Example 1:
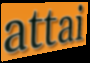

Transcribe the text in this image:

attai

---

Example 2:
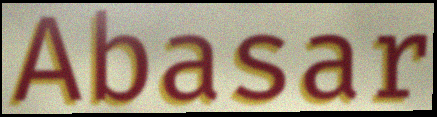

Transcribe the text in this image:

Abasar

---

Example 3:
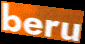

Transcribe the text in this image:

beru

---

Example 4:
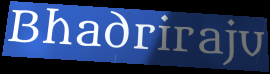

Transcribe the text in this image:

Bhadriraju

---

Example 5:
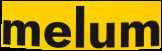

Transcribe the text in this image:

melum